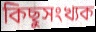
কিছুসংখ্যক